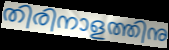
തിരിനാളത്തിനു